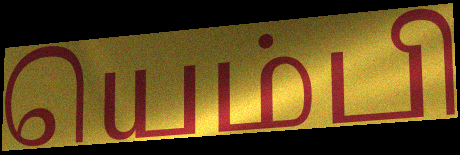
யெம்பி